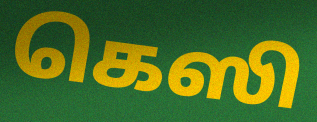
கெஸி